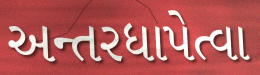
અન્તરધાપેત્વા